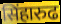
सिंहारुढ